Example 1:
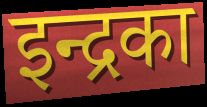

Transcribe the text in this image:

इन्द्रका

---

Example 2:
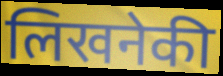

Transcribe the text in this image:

लिखनेकी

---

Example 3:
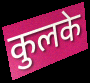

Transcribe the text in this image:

कुलके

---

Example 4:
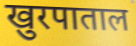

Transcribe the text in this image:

खुरपाताल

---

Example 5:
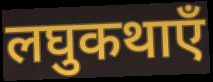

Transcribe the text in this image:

लघुकथाएँ